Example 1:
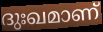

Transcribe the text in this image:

ദുഃഖമാണ്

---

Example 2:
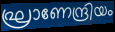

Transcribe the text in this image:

ഘ്രാണേന്ദ്രിയം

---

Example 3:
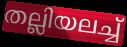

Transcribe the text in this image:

തല്ലിയലച്ച്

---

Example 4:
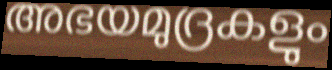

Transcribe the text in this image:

അഭയമുദ്രകളും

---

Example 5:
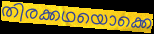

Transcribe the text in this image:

തിരക്കഥയൊക്കെ